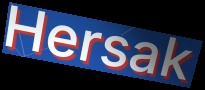
Hersak